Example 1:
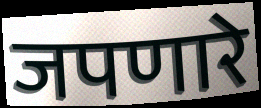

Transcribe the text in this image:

जपणारे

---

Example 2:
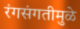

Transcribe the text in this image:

रंगसंगतीमुळे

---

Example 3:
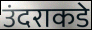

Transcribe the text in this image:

उंदराकडे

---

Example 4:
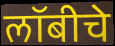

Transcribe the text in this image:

लॉबीचे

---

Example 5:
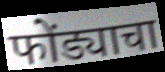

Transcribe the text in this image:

फोंड्याचा